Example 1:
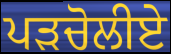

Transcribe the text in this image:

ਪੜਚੋਲੀਏ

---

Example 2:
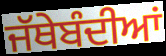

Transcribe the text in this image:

ਜੱਥੇਬੰਦੀਆਂ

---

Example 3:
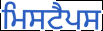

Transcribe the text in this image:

ਮਿਸਟੈਪਸ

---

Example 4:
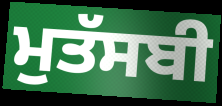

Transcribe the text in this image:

ਮੁਤੱਸਬੀ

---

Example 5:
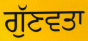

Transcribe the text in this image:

ਗੁੱਣਵਤਾ